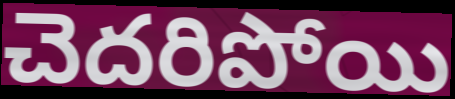
చెదరిపోయి